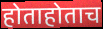
होताहोताच